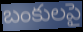
బంకులపై